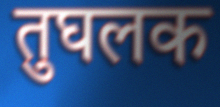
तुघलक